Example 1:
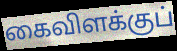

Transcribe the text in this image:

கைவிளக்குப்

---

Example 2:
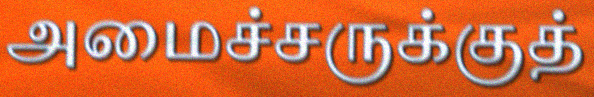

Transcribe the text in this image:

அமைச்சருக்குத்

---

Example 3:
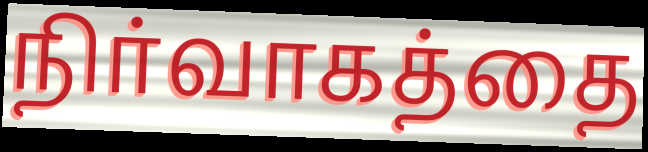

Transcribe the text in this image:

நிர்வாகத்தை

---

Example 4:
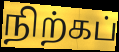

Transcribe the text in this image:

நிற்கப்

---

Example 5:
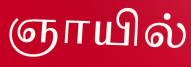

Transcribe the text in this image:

ஞாயில்